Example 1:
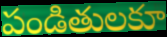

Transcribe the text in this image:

పండితులకూ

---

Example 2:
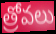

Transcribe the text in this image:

త్రోవలు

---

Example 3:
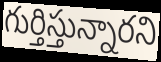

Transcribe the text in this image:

గుర్తిస్తున్నారని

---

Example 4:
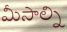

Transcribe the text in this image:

మీసాల్ని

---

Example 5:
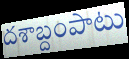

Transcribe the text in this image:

దశాబ్దంపాటు